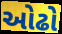
ઓઢો